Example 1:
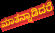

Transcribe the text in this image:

ಮಾತನ್ನಾಡಿದರೆ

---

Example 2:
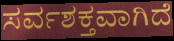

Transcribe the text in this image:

ಸರ್ವಶಕ್ತವಾಗಿದೆ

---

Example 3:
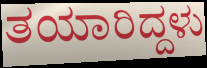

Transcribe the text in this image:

ತಯಾರಿದ್ದಳು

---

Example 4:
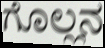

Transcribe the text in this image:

ಗೊಲ್ಲನ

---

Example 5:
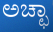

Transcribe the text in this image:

ಅಚ್ಛಾ